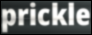
prickle